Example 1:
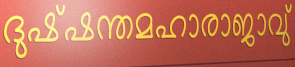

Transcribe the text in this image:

ദുഷ്ഷന്തമഹാരാജാവു്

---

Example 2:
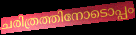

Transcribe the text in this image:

ചരിത്രത്തിനോടൊപ്പം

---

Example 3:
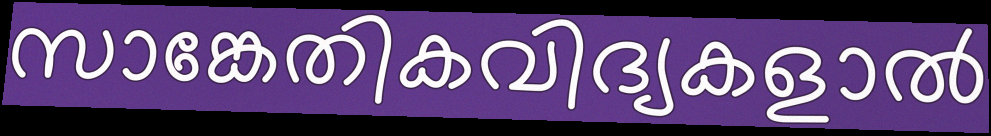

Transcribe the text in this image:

സാങ്കേതികവിദ്യകളാൽ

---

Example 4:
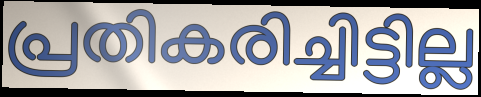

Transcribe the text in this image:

പ്രതികരിച്ചിട്ടില്ല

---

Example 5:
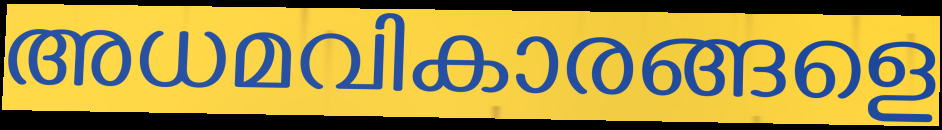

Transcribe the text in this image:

അധമവികാരങ്ങളെ